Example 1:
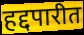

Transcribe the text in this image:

हद्दपारीत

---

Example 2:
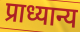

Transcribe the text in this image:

प्राध्यान्य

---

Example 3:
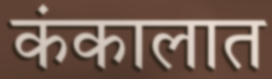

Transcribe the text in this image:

कंकालात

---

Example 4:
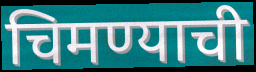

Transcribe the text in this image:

चिमण्याची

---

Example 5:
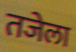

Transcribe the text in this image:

तजेला